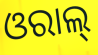
ଓରାଲ୍